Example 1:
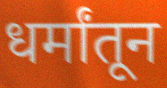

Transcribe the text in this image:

धर्मांतून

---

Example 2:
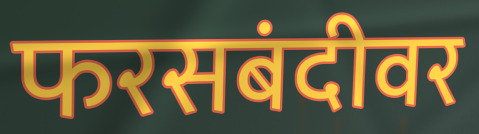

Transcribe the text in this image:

फरसबंदीवर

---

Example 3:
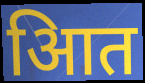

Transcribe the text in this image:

आित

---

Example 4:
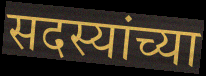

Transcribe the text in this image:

सदस्यांच्या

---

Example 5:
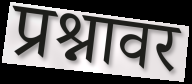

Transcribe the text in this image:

प्रश्नावर